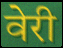
वेरी